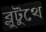
ব্লুটুথে